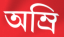
অম্রি